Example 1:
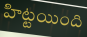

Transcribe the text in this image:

హిట్టయింది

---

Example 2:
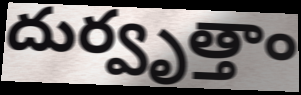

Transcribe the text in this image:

దుర్వృత్తాం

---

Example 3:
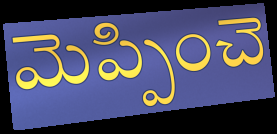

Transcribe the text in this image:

మెప్పించె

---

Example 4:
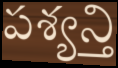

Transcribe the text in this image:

పశ్యన్తి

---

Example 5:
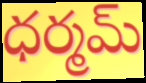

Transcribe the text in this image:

ధర్మమ్